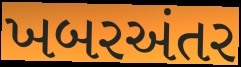
ખબરઅંતર